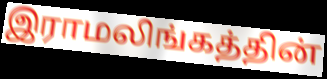
இராமலிங்கத்தின்